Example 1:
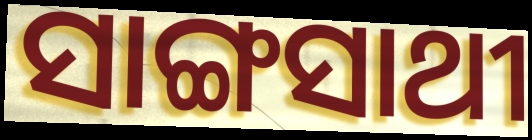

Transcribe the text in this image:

ସାଙ୍ଗସାଥୀ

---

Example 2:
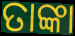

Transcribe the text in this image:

ତାଙ୍କା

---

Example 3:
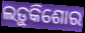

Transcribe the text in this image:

ଲଡ଼ୁକିଶୋର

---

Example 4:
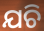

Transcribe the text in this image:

ଯଚି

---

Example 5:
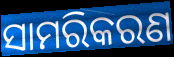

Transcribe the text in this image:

ସାମରିକରଣ